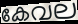
കേവല